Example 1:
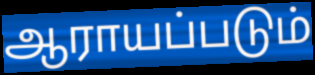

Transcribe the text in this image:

ஆராயப்படும்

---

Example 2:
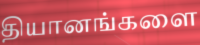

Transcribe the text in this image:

தியானங்களை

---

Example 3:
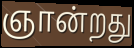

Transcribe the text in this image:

ஞான்றது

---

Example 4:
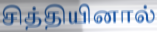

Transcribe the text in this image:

சித்தியினால்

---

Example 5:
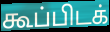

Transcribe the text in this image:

கூப்பிடக்